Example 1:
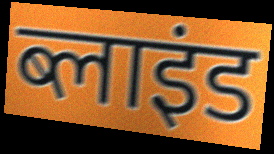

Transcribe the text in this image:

ब्लाइंड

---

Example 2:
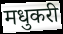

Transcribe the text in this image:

मधुकरी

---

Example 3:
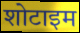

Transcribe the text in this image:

शोटाइम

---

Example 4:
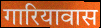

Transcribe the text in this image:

गारियावास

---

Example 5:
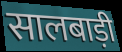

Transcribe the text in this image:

सालबाड़ी